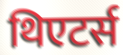
थिएटर्स